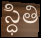
స్ధితి